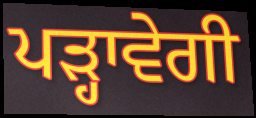
ਪੜ੍ਹਾਵੇਗੀ